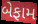
બેફામ